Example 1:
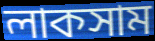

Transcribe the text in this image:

লাকসাম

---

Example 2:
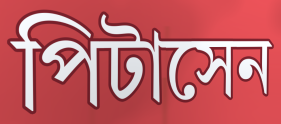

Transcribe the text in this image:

পিটাসেন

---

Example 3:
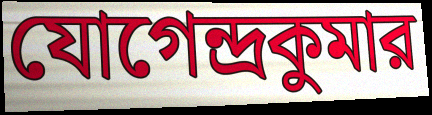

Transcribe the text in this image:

যোগেন্দ্রকুমার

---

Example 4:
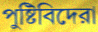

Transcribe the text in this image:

পুষ্টিবিদেরা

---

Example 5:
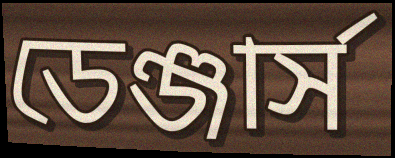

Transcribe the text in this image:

ডেঞ্জার্স